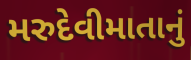
મરુદેવીમાતાનું